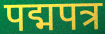
पद्मपत्र